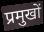
प्रमुखों